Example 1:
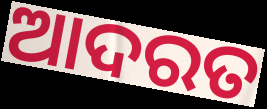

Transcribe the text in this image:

ଆଦରତ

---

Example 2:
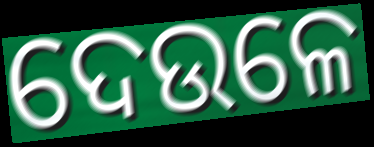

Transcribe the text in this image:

ଦେଉଳେ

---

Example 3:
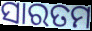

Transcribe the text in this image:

ସାରତମ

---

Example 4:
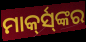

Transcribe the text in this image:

ମାର୍କ୍‍ସ୍‍ଙ୍କର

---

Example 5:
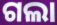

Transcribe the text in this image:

ଗଲା